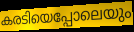
കരടിയെപ്പോലെയും